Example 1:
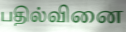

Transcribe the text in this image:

பதில்வினை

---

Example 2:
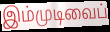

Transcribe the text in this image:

இம்முடிவைப்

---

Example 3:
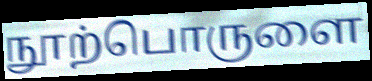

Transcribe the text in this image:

நூற்பொருளை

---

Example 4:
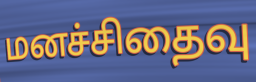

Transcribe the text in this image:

மனச்சிதைவு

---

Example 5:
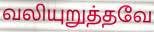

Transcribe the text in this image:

வலியுறுத்தவே